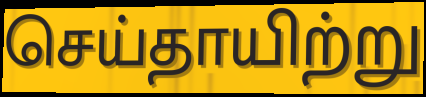
செய்தாயிற்று